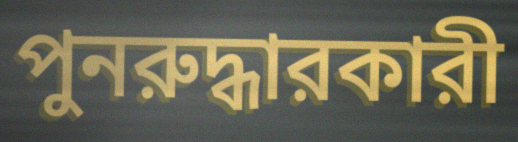
পুনরুদ্ধারকারী